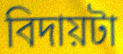
বিদায়টা